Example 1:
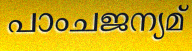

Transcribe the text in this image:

പാംചജന്യമ്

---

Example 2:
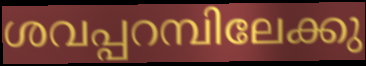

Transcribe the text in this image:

ശവപ്പറമ്പിലേക്കു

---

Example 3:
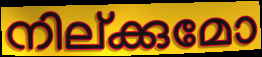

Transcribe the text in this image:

നില്ക്കുമോ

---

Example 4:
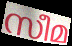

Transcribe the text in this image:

സീമ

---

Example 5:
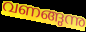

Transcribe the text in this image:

വണങ്ങുന്നു